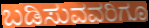
ಬಡಿಸುವವರಿಗೂ